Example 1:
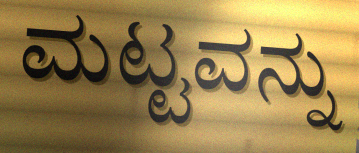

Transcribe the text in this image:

ಮಟ್ಟವನ್ನು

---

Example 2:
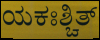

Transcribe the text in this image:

ಯಕಃಶ್ಚಿತ್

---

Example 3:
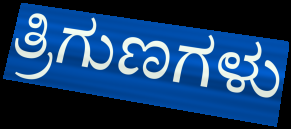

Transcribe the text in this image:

ತ್ರಿಗುಣಗಳು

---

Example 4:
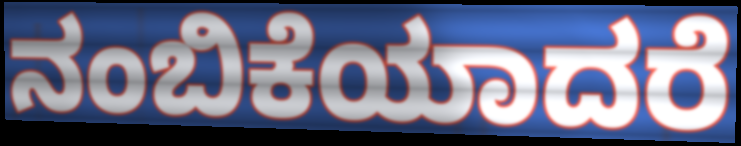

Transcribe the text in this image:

ನಂಬಿಕೆಯಾದರೆ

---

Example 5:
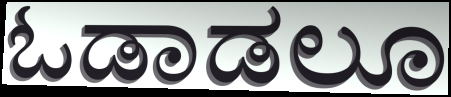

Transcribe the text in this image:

ಓಡಾಡಲೂ